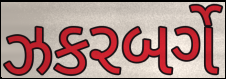
ઝકરબર્ગે